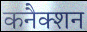
कनैक्शन